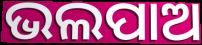
ଭଲପାଅ